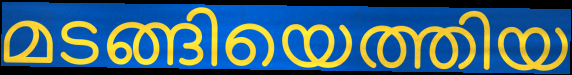
മടങ്ങിയെത്തിയ